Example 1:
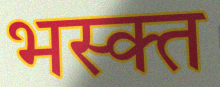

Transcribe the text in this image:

भस्क्त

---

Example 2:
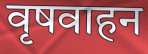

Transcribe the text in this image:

वृषवाहन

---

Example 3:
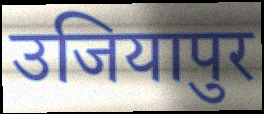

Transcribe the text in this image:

उजियापुर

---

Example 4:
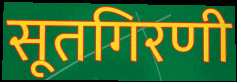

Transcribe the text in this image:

सूतगिरणी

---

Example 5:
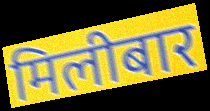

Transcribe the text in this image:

मिलीबार